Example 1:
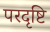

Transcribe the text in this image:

परदृष्टि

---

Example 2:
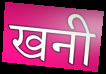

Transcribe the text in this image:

खनी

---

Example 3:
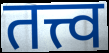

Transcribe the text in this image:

तत्त्व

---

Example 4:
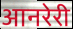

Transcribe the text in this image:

आनरेरी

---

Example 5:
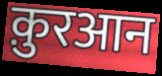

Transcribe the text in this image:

क़ुरआन